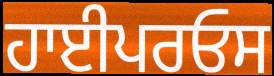
ਹਾਈਪਰਓਸ